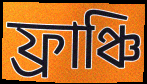
ফ্রাঞ্চি